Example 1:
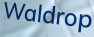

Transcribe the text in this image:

Waldrop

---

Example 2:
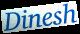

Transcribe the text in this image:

Dinesh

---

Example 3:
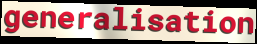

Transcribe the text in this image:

generalisation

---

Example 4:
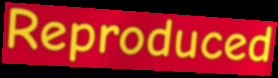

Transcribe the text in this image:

Reproduced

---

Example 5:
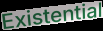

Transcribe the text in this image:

Existential